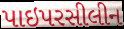
પાઇપરસીલીન